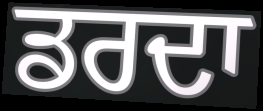
ਡਰਦਾ